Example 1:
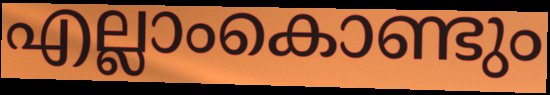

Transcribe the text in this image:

എല്ലാംകൊണ്ടും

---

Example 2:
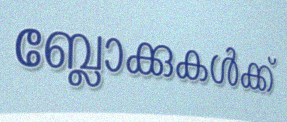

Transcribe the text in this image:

ബ്ലോക്കുകൾക്ക്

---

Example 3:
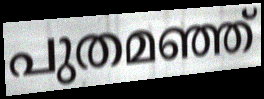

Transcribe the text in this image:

പുതമഞ്ഞ്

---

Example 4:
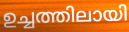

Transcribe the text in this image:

ഉച്ചത്തിലായി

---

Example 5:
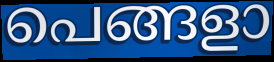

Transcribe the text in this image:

പെങ്ങളാ